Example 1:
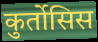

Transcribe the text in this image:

कुर्तोसिस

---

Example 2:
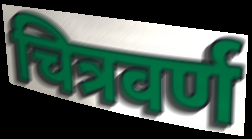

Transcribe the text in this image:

चित्रवर्ण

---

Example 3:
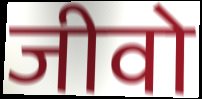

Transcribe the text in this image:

जीवो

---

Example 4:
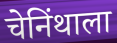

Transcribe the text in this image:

चेनिंथाला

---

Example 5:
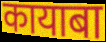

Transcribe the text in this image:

कायाबा